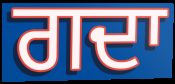
ਗਦਾ